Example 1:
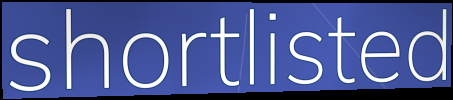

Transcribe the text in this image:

shortlisted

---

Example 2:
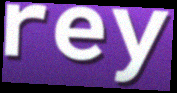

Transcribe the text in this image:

rey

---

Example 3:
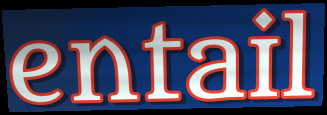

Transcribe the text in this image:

entail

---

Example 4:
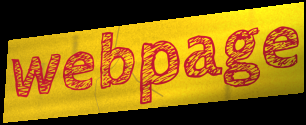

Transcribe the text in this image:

webpage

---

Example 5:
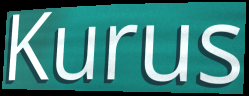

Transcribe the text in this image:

Kurus